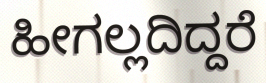
ಹೀಗಲ್ಲದಿದ್ದರೆ